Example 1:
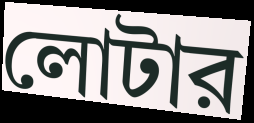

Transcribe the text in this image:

লোটার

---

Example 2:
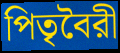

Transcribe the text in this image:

পিতৃবৈরী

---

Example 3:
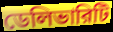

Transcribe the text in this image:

ডেলিভারিটি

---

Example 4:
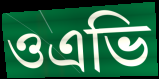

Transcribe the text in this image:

ওএভি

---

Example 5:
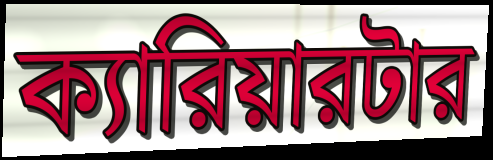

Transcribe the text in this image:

ক্যারিয়ারটার